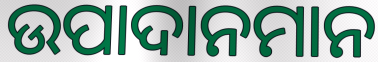
ଉପାଦାନମାନ